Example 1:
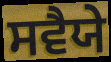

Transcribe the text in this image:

ਸਵੈਯੇ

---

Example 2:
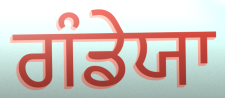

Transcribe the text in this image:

ਗੰਡੇਯਾ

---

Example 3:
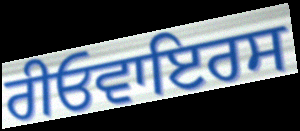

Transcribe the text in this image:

ਰੀਓਵਾਇਰਸ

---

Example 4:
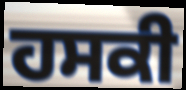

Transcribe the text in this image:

ਹਸਕੀ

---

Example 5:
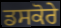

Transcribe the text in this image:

ਡਸਕੋਰੇ